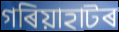
গৰিয়াহাটৰ